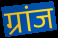
ग्रांज